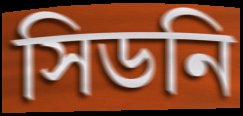
সিডনি